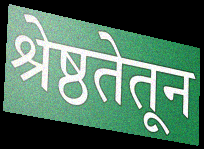
श्रेष्ठतेतून